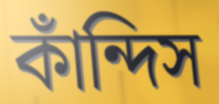
কাঁন্দিস